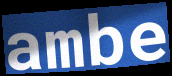
ambe